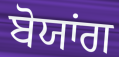
ਬੋਯਾਂਗ